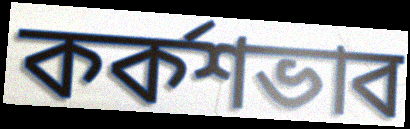
কর্কশভাব